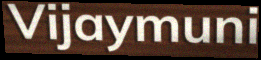
Vijaymuni